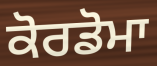
ਕੋਰਡੋਮਾ